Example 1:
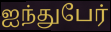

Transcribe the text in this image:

ஐந்துபேர்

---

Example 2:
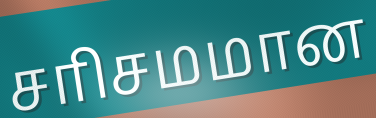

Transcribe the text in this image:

சரிசமமான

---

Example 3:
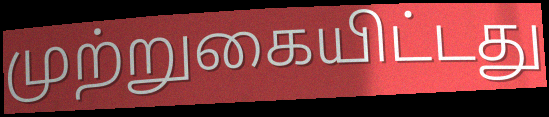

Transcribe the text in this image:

முற்றுகையிட்டது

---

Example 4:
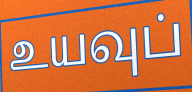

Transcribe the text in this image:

உயவுப்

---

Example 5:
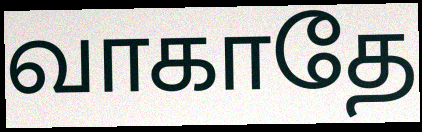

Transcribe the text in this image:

வாகாதே